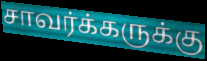
சாவர்க்கருக்கு